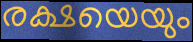
രക്ഷയെയും